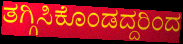
ತಗ್ಗಿಸಿಕೊಂಡದ್ದರಿಂದ